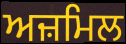
ਅਜ਼ਮਿਲ